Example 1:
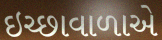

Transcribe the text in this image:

ઇચ્છાવાળાએ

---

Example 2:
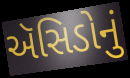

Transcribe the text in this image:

ઍસિડોનું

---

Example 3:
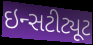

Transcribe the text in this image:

ઇન્સટીટ્યૂટ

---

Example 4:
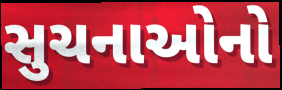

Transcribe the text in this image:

સુચનાઓનો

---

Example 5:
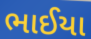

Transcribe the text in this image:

ભાઈયા